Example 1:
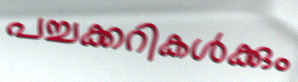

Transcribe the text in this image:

പച്ചക്കറികൾക്കും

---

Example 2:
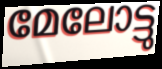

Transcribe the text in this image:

മേലോട്ടു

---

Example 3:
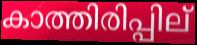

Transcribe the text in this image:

കാത്തിരിപ്പില്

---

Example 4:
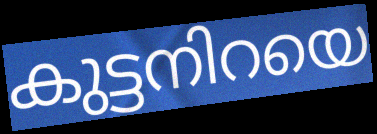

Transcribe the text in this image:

കുട്ടനിറയെ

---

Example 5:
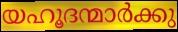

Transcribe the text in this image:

യഹൂദന്മാർക്കു